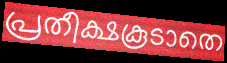
പ്രതീക്ഷകൂടാതെ